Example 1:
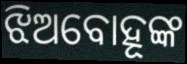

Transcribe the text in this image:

ଝିଅବୋହୂଙ୍କ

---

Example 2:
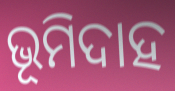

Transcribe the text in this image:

ଭୂମିଦାହ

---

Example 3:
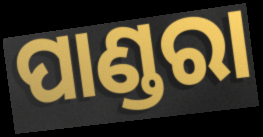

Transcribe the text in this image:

ପାଣ୍ଡରା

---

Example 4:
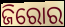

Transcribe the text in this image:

ଜିରୋର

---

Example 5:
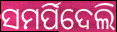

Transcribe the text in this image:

ସମର୍ପିଦେଲି